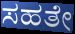
ಸಹತೇ